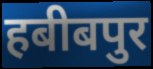
हबीबपुर